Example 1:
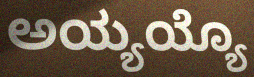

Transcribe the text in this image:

ಅಯ್ಯಯ್ಯೊ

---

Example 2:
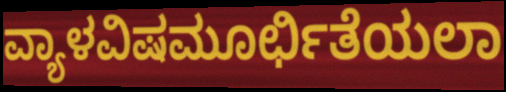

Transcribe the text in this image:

ವ್ಯಾಳವಿಷಮೂರ್ಛಿತೆಯಲಾ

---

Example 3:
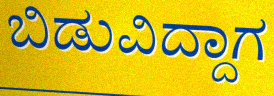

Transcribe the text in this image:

ಬಿಡುವಿದ್ದಾಗ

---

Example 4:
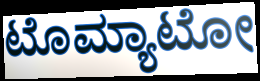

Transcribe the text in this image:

ಟೊಮ್ಯಾಟೋ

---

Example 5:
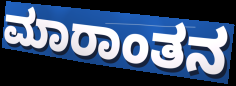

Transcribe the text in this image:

ಮಾರಾಂತನ